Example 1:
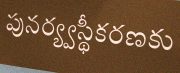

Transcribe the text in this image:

పునర్య్వస్థీకరణకు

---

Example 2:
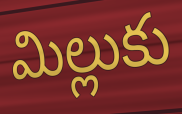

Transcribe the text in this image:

మిల్లుకు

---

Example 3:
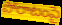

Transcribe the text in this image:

పోరాటంపై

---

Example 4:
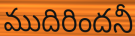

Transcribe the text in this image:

ముదిరిందనీ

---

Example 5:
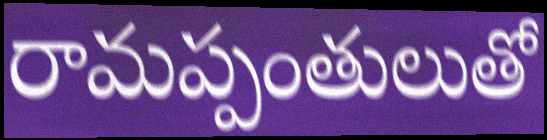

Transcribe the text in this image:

రామప్పంతులుతో